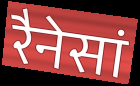
रैनेसां